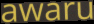
awaru